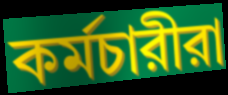
কর্মচারীরা